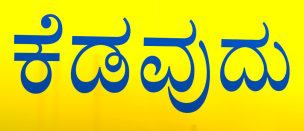
ಕೆಡವುದು